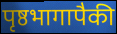
पृष्ठभागापैकी